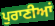
ਪੁਰਾਣੀਆਂ